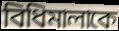
বিধিমালাকে